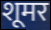
शूमर